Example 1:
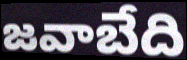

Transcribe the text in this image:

జవాబేది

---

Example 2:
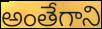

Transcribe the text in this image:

అంతేగాని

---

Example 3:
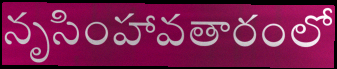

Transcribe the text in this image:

నృసింహావతారంలో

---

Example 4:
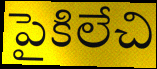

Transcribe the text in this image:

పైకిలేచి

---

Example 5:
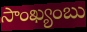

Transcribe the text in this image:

సాంఖ్యంబు